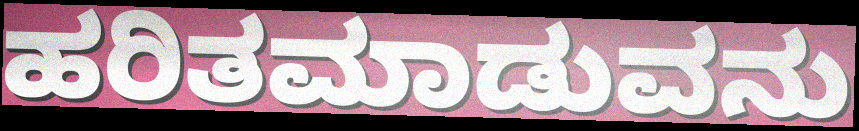
ಹರಿತಮಾಡುವನು